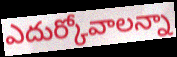
ఎదుర్కోవాలన్నా